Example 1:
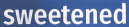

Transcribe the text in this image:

sweetened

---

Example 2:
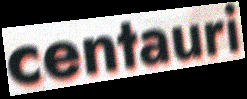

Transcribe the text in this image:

centauri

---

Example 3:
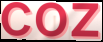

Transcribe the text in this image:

coz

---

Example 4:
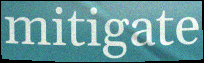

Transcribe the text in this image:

mitigate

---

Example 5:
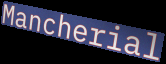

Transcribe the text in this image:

Mancherial